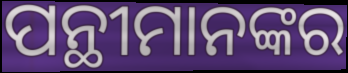
ପନ୍ଥୀମାନଙ୍କର